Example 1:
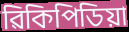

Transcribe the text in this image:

ৱিকিপিডিয়া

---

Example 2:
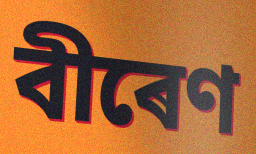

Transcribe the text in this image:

বীৰেণ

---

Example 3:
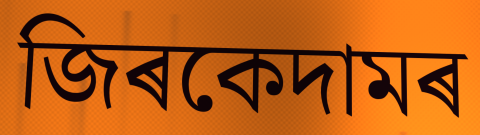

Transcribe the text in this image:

জিৰকেদামৰ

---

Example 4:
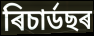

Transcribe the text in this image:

ৰিচাৰ্ডছৰ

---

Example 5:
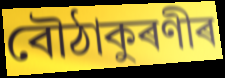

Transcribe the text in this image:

বৌঠাকুৰণীৰ